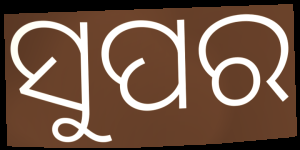
ସୁପର